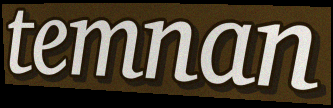
temnan